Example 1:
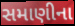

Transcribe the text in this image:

સમાણીના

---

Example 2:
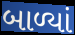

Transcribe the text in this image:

બાળ્યાં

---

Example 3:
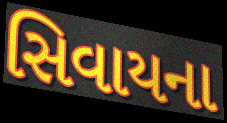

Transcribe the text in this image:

સિવાયના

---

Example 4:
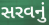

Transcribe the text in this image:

સરવનું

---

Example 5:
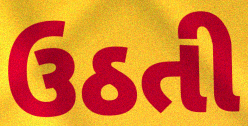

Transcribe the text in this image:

ઉઠતી